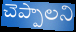
చెప్పాలని